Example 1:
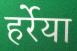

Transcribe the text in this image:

हर्रेया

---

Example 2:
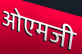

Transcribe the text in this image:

ओएमजी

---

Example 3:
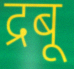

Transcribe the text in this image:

द्रबू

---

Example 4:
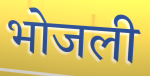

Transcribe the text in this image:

भोजली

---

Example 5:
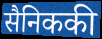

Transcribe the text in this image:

सैनिककी